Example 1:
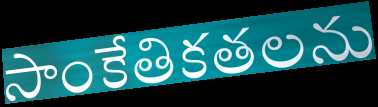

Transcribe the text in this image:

సాంకేతికతలను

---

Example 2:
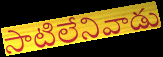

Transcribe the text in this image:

సాటిలేనివాడు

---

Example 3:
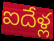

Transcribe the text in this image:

ఐదేళ్ల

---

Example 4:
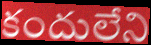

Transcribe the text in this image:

కందులేని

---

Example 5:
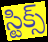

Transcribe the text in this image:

స్టిక్స్